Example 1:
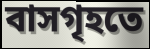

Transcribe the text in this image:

বাসগৃহতে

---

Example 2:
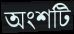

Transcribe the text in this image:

অংশটি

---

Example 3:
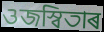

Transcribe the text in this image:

ওজস্বিতাৰ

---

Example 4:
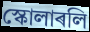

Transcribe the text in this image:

স্কোলাৰলি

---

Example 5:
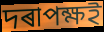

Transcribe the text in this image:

দৰাপক্ষই